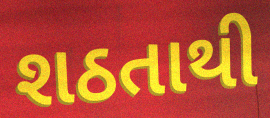
શઠતાથી